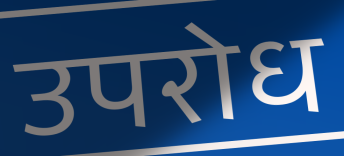
उपरोध